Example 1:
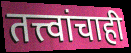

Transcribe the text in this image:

तत्त्वांचाही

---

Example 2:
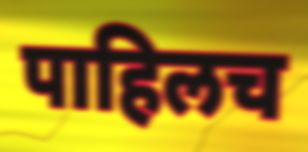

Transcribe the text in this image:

पाहिलच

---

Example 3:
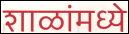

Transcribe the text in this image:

शाळांमध्ये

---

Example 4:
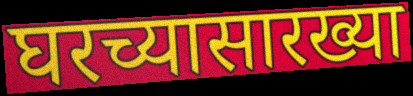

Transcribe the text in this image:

घरच्यासारख्या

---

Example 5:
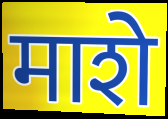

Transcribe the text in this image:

माशे